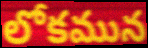
లోకమున